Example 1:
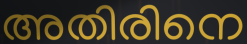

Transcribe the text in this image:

അതിരിനെ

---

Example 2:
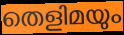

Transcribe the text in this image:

തെളിമയും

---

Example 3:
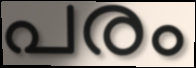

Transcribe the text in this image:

പരം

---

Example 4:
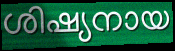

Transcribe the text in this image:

ശിഷ്യനായ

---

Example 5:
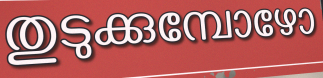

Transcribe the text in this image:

തുടുക്കുമ്പോഴോ